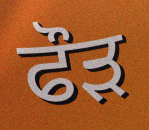
ਫੌਡ਼